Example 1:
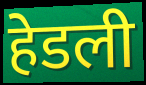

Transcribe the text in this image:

हेडली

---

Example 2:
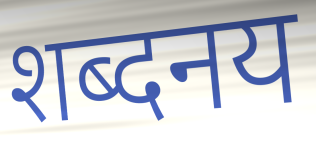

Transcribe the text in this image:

शब्दनय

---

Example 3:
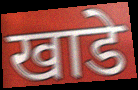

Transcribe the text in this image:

खाडे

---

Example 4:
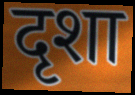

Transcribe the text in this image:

दृशा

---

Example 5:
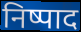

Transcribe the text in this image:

निष्पाद